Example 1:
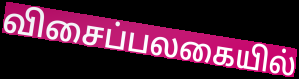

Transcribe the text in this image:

விசைப்பலகையில்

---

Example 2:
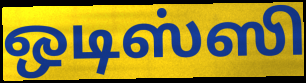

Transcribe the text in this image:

ஒடிஸ்ஸி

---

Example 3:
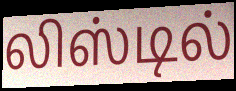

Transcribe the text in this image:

லிஸ்டில்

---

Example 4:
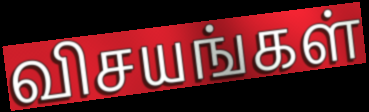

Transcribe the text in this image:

விசயங்கள்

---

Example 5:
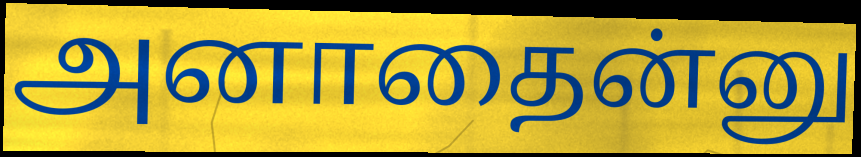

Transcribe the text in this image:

அனாதைன்னு